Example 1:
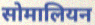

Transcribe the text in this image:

सोमालियन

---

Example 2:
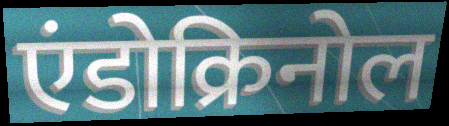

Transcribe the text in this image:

एंडोक्रिनोल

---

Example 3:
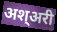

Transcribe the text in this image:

अश्अरी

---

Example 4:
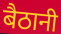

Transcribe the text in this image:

बैठानी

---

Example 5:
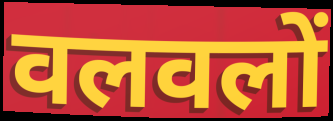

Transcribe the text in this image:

वलवलों